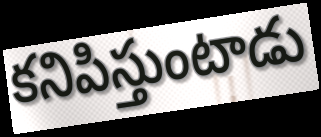
కనిపిస్తుంటాడు